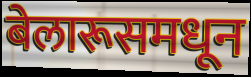
बेलारूसमधून